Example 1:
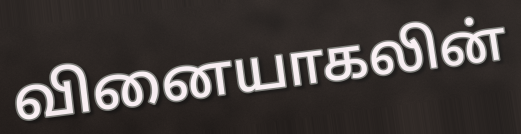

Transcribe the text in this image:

வினையாகலின்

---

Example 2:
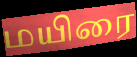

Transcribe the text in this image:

மயிரை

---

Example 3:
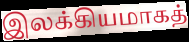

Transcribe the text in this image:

இலக்கியமாகத்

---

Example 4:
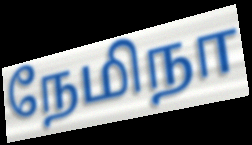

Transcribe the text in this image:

நேமிநா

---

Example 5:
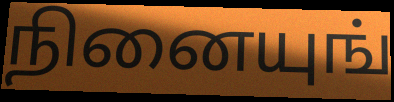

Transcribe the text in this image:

நினையுங்